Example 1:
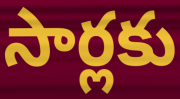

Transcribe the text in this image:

సార్లకు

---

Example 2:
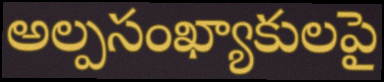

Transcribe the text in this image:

అల్పసంఖ్యాకులపై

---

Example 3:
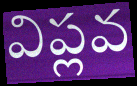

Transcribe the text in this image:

విప్లవ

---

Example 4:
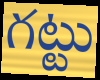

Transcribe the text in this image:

గట్టు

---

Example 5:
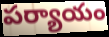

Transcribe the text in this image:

పర్యాయం